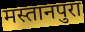
मस्तानपुरा